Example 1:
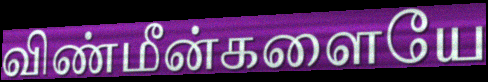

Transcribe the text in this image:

விண்மீன்களையே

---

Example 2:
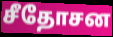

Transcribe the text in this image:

சீதோசன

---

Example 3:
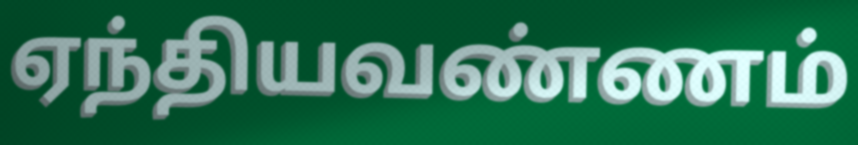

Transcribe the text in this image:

ஏந்தியவண்ணம்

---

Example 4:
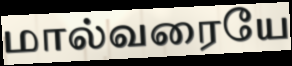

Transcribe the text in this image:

மால்வரையே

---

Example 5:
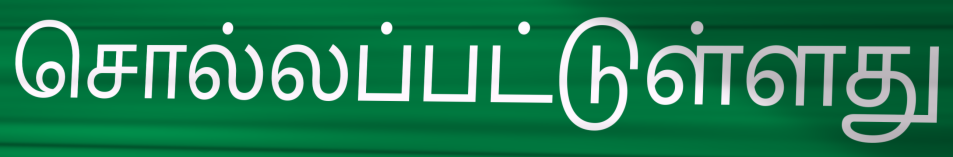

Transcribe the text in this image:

சொல்லப்பட்டுள்ளது